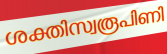
ശക്തിസ്വരൂപിണി